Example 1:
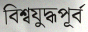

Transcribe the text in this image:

বিশ্বযুদ্ধপূর্ব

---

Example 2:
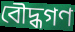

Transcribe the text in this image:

বৌদ্ধগণ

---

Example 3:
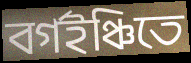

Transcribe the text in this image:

বর্গইঞ্চিতে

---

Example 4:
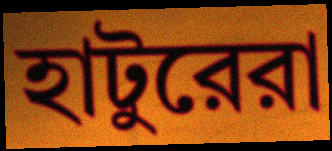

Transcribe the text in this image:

হাটুরেরা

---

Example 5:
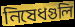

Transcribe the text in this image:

নিষেধগুলি